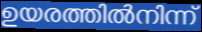
ഉയരത്തിൽനിന്ന്